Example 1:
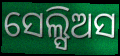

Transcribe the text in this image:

ସେଲ୍ସିଅସ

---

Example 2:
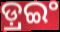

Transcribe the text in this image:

ଡ଼୍ରଇଂ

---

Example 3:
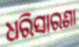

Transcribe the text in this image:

ଧରିସାରଣା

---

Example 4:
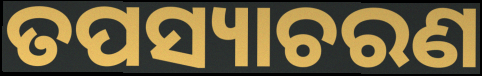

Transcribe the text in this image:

ତପସ୍ୟାଚରଣ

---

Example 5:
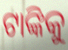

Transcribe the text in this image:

ଟାଙ୍କିକୁ